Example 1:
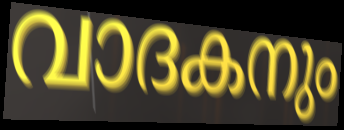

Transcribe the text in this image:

വാദകനും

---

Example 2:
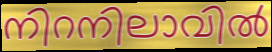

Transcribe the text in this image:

നിറനിലാവിൽ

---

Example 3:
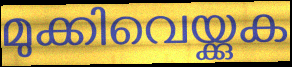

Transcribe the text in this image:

മുക്കിവെയ്ക്കുക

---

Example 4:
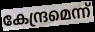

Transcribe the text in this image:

കേന്ദ്രമെന്ന്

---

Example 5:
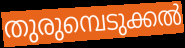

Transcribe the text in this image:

തുരുമ്പെടുക്കൽ